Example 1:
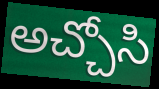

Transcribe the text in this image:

అచ్చోసి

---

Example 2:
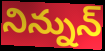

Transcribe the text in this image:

నిన్నున్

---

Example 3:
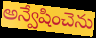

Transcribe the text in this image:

అన్వేషించెను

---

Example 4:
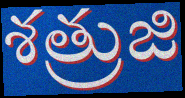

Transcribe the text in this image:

శత్రుజి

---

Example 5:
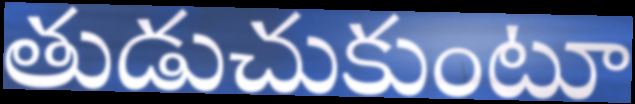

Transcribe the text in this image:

తుడుచుకుంటూ